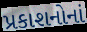
પ્રકાશનોનાં